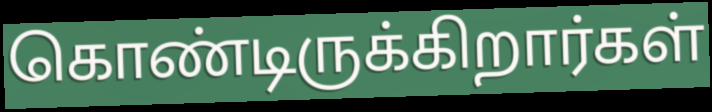
கொண்டிருக்கிறார்கள்